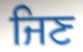
ਜਿਣ